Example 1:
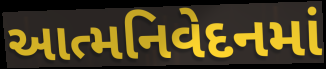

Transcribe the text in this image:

આત્મનિવેદનમાં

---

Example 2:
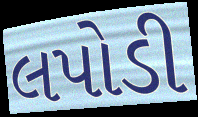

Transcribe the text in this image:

લપોડી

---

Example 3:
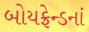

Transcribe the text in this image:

બોયફ્રેન્ડનાં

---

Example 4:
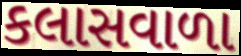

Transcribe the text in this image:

કલાસવાળા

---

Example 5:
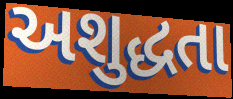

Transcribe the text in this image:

અશુદ્ધતા